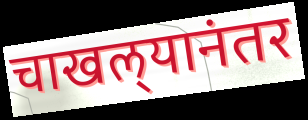
चाखल्यानंतर